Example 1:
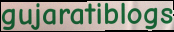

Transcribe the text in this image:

gujaratiblogs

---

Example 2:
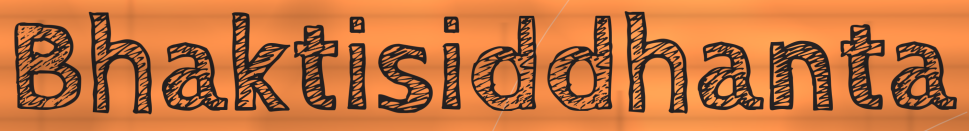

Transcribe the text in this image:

Bhaktisiddhanta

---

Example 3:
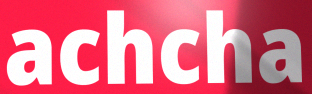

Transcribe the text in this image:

achcha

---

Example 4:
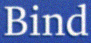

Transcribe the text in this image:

Bind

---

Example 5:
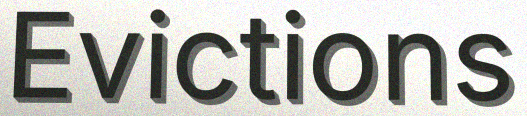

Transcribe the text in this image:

Evictions